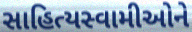
સાહિત્યસ્વામીઓને